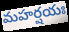
మహర్షయః